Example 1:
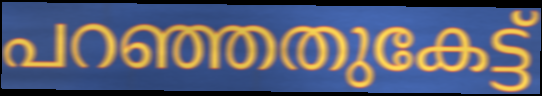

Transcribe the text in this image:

പറഞ്ഞതുകേട്ട്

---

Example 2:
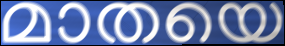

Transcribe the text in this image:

മാതയെ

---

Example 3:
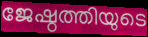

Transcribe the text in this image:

ജേഷ്ഠത്തിയുടെ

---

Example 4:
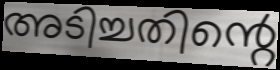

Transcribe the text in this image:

അടിച്ചതിന്റെ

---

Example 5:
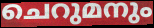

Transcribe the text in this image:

ചെറുമനും